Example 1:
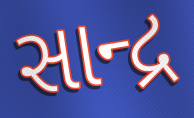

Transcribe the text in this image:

સાન્દ્ર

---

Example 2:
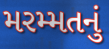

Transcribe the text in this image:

મરમ્મતનું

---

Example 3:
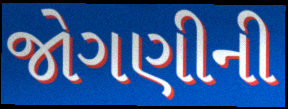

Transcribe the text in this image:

જોગણીની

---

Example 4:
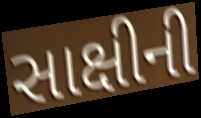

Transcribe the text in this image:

સાક્ષીની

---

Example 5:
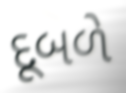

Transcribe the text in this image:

દૂબળે